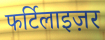
फर्टिलाइज़र